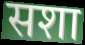
सशा